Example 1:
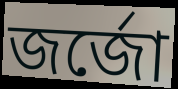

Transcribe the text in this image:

জর্জো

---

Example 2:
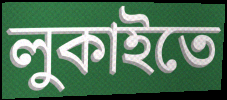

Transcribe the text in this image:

লুকাইতে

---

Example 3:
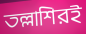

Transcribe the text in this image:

তল্লাশিরই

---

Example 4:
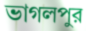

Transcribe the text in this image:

ভাগলপুর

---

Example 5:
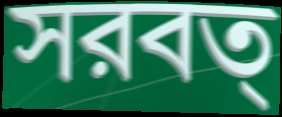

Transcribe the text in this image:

সরবত্